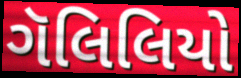
ગૅલિલિયો